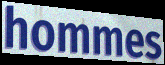
hommes